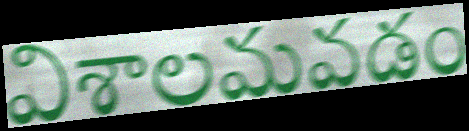
విశాలమవడం